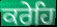
ਕਰੇਹਿ